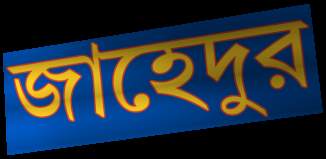
জাহেদুর